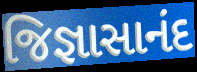
જિજ્ઞાસાનંદ